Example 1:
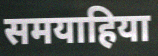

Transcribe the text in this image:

समयाहिया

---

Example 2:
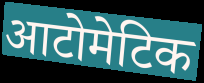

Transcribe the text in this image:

आटोमेटिक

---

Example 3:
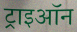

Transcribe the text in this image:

ट्राइऑन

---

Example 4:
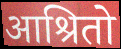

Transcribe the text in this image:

आश्रितो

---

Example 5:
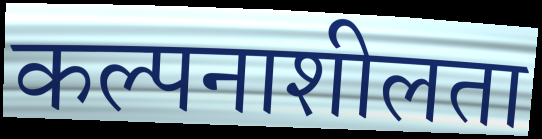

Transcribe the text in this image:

कल्पनाशीलता